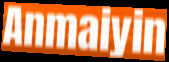
Anmaiyin